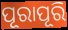
ପୂରାପୂରି